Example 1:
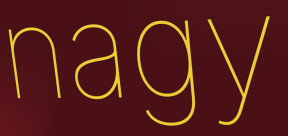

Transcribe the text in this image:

nagy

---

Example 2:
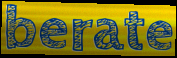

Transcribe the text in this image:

berate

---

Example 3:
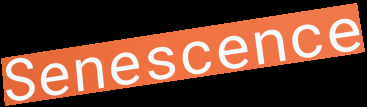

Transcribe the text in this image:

Senescence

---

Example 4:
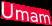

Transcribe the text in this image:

Umam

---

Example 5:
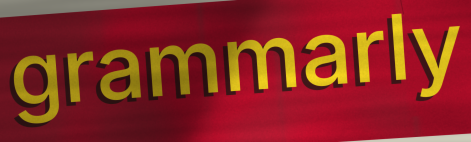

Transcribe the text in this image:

grammarly